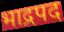
भाद्रपद